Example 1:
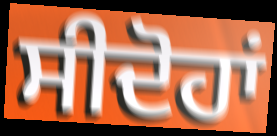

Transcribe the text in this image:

ਸੀਦੋਹਾਂ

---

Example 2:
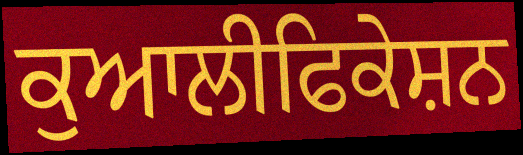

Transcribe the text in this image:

ਕੁਆਲੀਫਿਕੇਸ਼ਨ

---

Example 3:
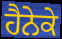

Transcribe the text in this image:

ਹੈਨੇਕੇ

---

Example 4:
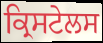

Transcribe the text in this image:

ਕ੍ਰਿਸਟੇਲਸ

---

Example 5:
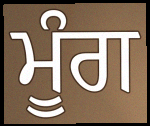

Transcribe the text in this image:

ਮੂੰਗ